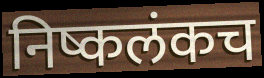
निष्कलंकच